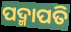
ପଦ୍ମାପତି